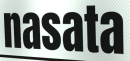
nasata